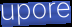
upore